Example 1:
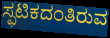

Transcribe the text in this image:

ಸ್ಫಟಿಕದಂತಿರುವ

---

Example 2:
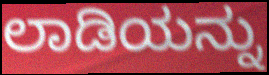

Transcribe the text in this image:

ಲಾಡಿಯನ್ನು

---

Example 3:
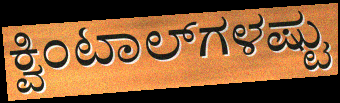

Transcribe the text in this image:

ಕ್ವಿಂಟಾಲ್‌ಗಳಷ್ಟು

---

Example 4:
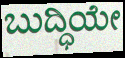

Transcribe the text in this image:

ಬುದ್ಧಿಯೇ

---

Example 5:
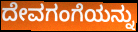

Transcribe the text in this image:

ದೇವಗಂಗೆಯನ್ನು